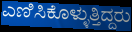
ಎಣಿಸಿಕೊಳ್ಳುತ್ತಿದ್ದರು